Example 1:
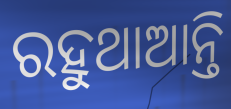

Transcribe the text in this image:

ରହୁଥାଆନ୍ତି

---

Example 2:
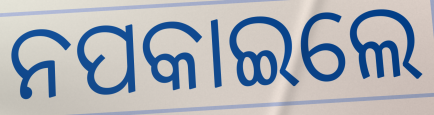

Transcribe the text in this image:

ନପକାଇଲେ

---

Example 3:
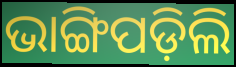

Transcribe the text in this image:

ଭାଙ୍ଗିପଡ଼ିଲି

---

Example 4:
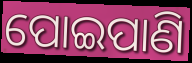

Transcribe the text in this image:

ପୋଇପାଣି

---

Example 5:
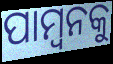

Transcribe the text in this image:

ପାମ୍ବନକୁ